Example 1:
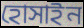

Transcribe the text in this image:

হোসাইন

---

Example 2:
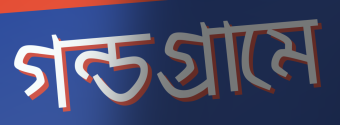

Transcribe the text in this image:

গন্ডগ্রামে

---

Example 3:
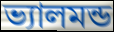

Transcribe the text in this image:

ভ্যালমন্ড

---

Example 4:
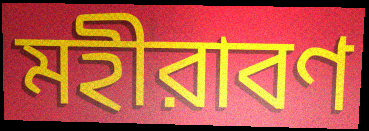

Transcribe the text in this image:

মহীরাবণ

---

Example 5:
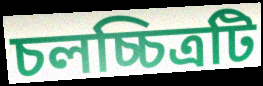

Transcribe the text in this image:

চলচ্চিত্রটি